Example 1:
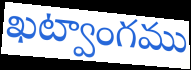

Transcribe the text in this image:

ఖట్వాంగము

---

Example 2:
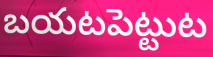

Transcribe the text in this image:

బయటపెట్టుట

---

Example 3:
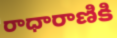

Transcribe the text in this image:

రాధారాణికి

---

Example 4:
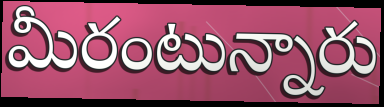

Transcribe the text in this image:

మీరంటున్నారు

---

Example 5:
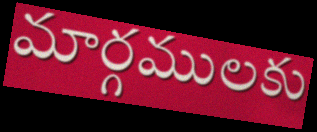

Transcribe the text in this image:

మార్గములకు